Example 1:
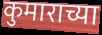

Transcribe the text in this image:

कुमाराच्या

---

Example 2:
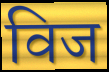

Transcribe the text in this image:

विज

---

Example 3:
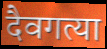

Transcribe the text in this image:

दैवगत्या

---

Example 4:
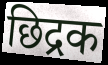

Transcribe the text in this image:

छिद्रक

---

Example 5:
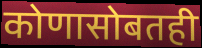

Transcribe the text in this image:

कोणासोबतही